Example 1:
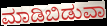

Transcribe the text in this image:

ಮಾಡಿಬಿಡುವಾ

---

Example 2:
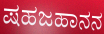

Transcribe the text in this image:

ಷಹಜಹಾನನ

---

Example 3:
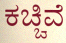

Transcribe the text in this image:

ಕಚ್ಚಿವೆ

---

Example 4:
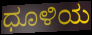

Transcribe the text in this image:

ಧೂಳಿಯ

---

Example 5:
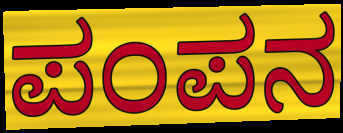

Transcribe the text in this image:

ಪಂಪನ